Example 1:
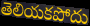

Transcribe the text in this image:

తెలియకపోదు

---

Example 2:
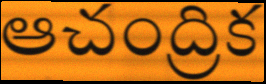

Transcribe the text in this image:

ఆచంద్రిక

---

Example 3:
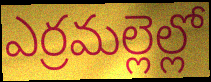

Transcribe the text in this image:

ఎర్రమల్లెల్లో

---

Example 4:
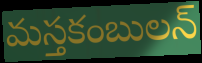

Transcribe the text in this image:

మస్తకంబులన్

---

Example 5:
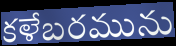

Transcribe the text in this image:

కళేబరమును